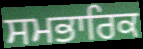
ਸਮਭਾਰਿਕ